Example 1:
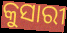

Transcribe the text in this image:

କୁସାରୀ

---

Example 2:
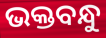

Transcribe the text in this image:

ଭକ୍ତବନ୍ଧୁ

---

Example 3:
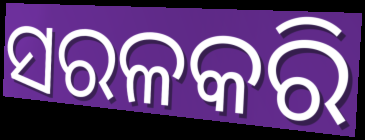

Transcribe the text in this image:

ସରଳକରି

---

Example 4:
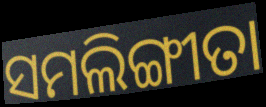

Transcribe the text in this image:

ସମଲିଙ୍ଗୀତା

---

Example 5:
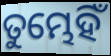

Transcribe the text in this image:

ତୁମ୍ଭେହିଁ